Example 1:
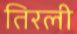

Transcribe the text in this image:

तिरली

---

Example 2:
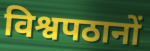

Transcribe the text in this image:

विश्वपठानों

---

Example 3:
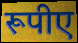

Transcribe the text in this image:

रूपीए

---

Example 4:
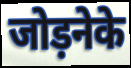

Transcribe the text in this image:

जोड़नेके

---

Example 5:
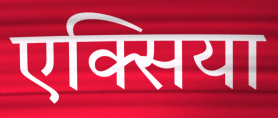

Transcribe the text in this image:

एक्सिया